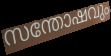
സന്തോഷവും